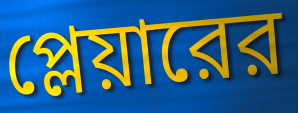
প্লেয়ারের